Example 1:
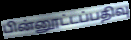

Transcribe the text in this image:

பின்னூட்டப்பதிவு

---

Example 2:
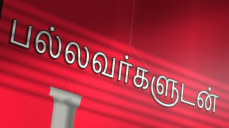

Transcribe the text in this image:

பல்லவர்களுடன்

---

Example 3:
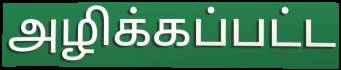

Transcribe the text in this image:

அழிக்கப்பட்ட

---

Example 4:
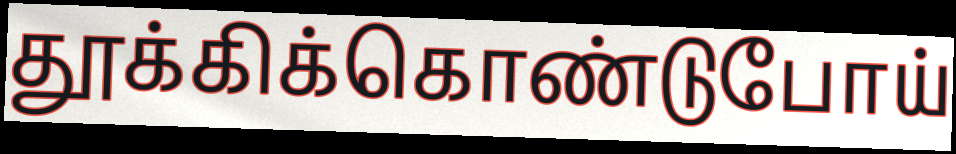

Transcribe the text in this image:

தூக்கிக்கொண்டுபோய்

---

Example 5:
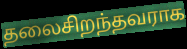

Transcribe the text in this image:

தலைசிறந்தவராக